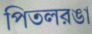
পিতলরঙা